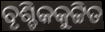
ବୃଶ୍ଚିକକୁଟ୍ଟିତ